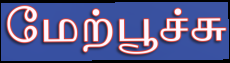
மேற்பூச்சு